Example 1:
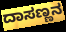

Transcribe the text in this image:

ದಾಸಣ್ಣನ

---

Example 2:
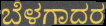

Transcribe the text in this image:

ಬೆಳಗಾದರ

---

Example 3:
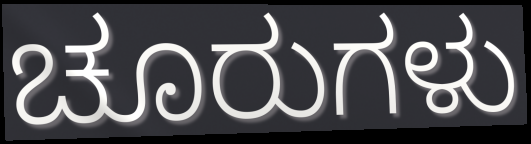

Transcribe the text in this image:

ಚೂರುಗಳು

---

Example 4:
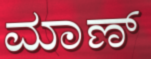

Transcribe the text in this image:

ಮಾಣ್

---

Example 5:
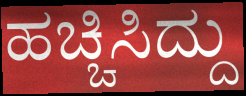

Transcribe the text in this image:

ಹಚ್ಚಿಸಿದ್ದು